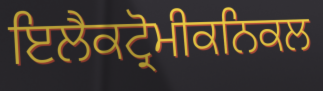
ਇਲੈਕਟ੍ਰੋਮੀਕਨਿਕਲ